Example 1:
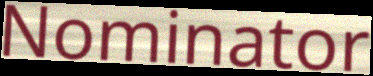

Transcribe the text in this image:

Nominator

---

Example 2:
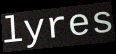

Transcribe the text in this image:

lyres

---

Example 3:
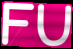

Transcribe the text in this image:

FU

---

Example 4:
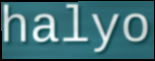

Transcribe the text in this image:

halyo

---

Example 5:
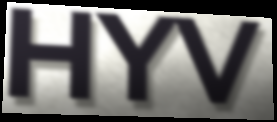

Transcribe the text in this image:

HYV